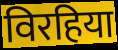
विरहिया